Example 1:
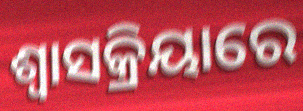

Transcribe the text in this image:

ଶ୍ୱାସକ୍ରିୟାରେ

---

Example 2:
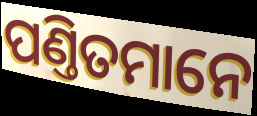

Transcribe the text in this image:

ପଣ୍ତିତମାନେ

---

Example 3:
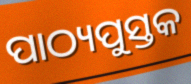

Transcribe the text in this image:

ପାଠ୍ୟପୁସ୍ତକ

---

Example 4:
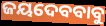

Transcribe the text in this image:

ଜୟଦେବବାବୁ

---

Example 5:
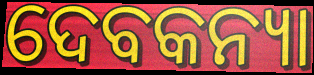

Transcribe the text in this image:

ଦେବକନ୍ୟା